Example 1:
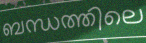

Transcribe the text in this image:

ബന്ധത്തിലെ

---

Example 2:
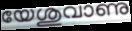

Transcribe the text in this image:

യേശുവാണു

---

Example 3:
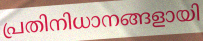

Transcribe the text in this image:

പ്രതിനിധാനങ്ങളായി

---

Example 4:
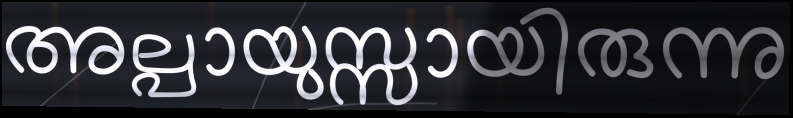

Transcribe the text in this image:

അല്പായുസ്സായിരുന്നു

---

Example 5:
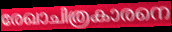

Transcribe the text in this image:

രേഖാചിത്രകാരനെ